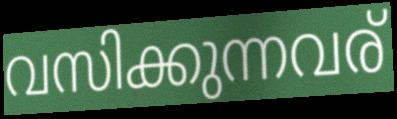
വസിക്കുന്നവര്